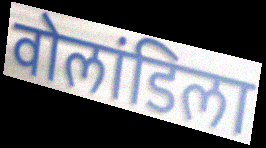
वोलांडिला